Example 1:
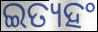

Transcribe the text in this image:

ଇତ୍ୟହଂ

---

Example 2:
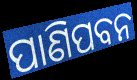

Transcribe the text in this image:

ପାଣିପବନ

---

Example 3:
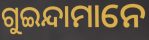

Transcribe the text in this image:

ଗୁଇନ୍ଦାମାନେ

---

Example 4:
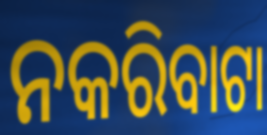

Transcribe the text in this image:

ନକରିବାଟା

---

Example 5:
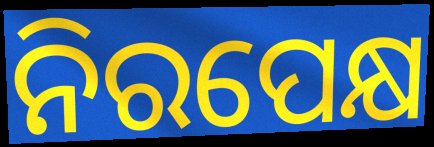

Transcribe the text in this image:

ନିରପେକ୍ଷ